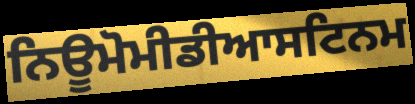
ਨਿਊਮੋਮੀਡੀਆਸਟਿਨਮ